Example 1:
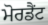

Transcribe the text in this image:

ਮੋਰਡੈਂਟ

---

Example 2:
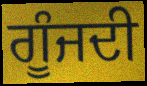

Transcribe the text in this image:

ਗੂੰਜਦੀ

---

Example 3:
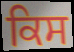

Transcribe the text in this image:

ਕਿਸ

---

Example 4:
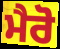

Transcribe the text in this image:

ਮੈਰੋ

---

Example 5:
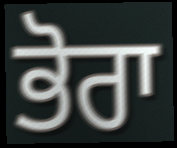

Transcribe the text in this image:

ਭੋਰਾ